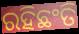
ରହିଛଂତି